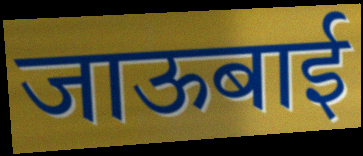
जाऊबाई